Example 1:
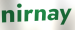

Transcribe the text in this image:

nirnay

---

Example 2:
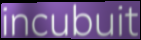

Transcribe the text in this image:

incubuit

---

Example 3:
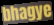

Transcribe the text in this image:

bhagye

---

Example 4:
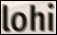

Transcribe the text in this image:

lohi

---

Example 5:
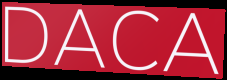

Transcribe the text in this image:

DACA